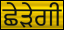
ਛੇੜੇਗੀ